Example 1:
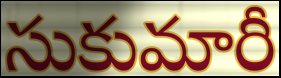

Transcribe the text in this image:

సుకుమారీ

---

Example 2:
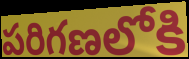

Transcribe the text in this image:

పరిగణలోకి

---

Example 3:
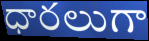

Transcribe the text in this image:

ధారలుగా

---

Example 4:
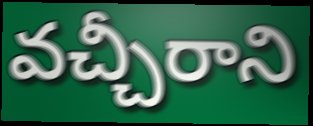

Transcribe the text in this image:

వచ్చీరాని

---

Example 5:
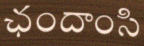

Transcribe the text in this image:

ఛందాంసి